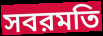
সবরমতি